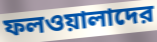
ফলওয়ালাদের